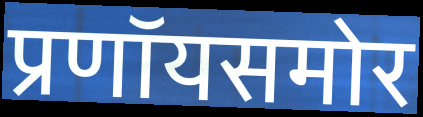
प्रणॉयसमोर